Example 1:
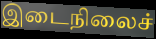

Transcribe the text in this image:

இடைநிலைச்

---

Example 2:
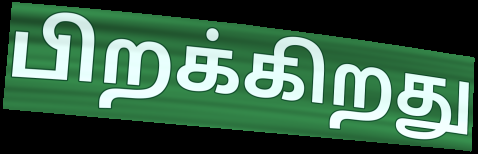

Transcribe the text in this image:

பிறக்கிறது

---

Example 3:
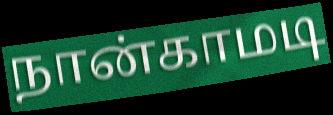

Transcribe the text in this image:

நான்காமடி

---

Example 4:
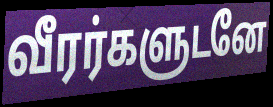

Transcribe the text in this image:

வீரர்களுடனே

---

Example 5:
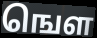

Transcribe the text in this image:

ஙௌ